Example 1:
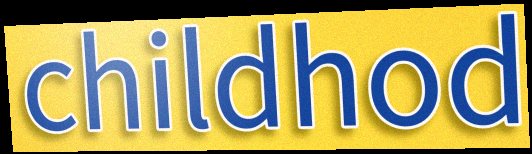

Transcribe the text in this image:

childhod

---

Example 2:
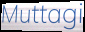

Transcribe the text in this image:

Muttagi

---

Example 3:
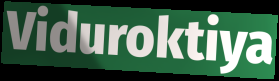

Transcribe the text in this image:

Viduroktiya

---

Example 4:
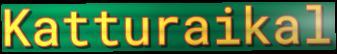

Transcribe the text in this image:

Katturaikal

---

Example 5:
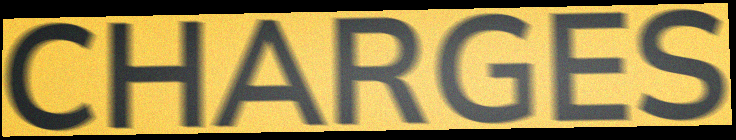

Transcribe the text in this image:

CHARGES